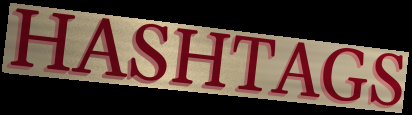
HASHTAGS